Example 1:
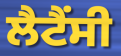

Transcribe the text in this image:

ਲੈਟੈਂਸੀ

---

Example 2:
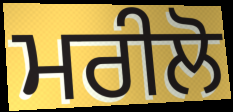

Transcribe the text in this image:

ਮਰੀਲੋ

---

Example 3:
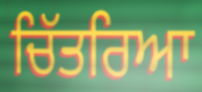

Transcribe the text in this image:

ਚਿੱਤਰਿਆ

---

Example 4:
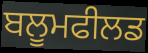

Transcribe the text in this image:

ਬਲੂਮਫੀਲਡ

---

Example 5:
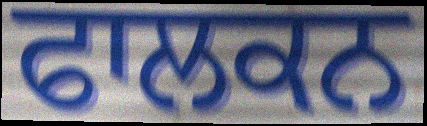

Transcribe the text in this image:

ਫਾਲਕਨ